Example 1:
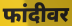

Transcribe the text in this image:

फांदीवर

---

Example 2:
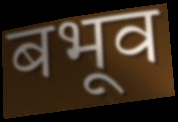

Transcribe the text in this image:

बभूव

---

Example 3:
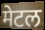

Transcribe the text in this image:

मेटल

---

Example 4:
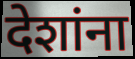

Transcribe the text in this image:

देशांना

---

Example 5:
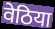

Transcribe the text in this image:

वेठिया